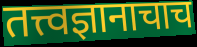
तत्त्वज्ञानाचाच